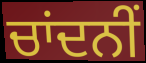
ਚਾਂਦਨੀਂ